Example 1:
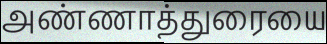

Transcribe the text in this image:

அண்ணாத்துரையை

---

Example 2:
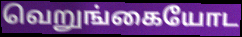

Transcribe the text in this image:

வெறுங்கையோட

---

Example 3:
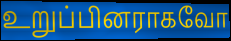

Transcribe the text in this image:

உறுப்பினராகவோ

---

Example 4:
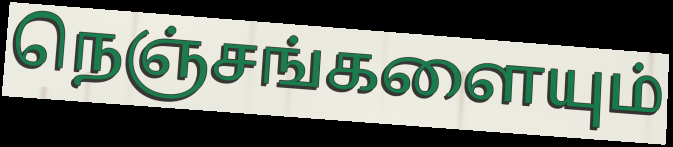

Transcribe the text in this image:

நெஞ்சங்களையும்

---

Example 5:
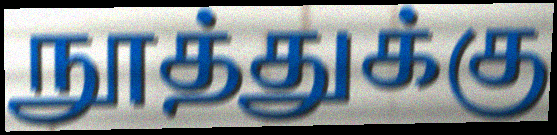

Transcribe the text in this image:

நூத்துக்கு